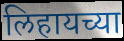
लिहायच्या